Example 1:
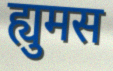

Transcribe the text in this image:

ह्युमस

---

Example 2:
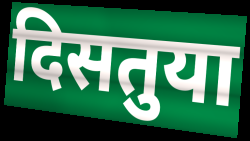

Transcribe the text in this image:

दिसतुया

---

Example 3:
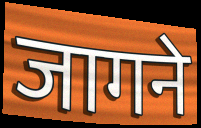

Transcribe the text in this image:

जागने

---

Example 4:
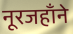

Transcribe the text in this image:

नूरजहाँने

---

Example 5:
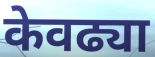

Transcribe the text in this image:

केवढ्या